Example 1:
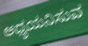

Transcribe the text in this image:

ಅಧ್ಯಯನಿಸುವ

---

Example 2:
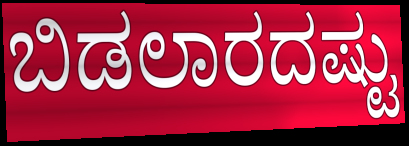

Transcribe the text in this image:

ಬಿಡಲಾರದಷ್ಟು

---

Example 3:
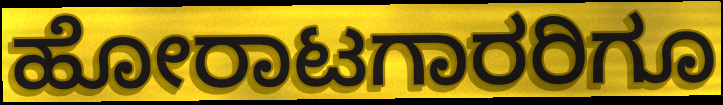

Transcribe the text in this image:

ಹೋರಾಟಗಾರರಿಗೂ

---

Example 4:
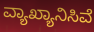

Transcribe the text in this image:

ವ್ಯಾಖ್ಯಾನಿಸಿವೆ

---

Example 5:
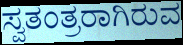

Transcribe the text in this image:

ಸ್ವತಂತ್ರರಾಗಿರುವ